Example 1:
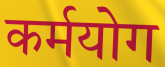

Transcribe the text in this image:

कर्मयोग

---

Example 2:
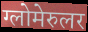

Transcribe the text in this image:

ग्लोमेरुलर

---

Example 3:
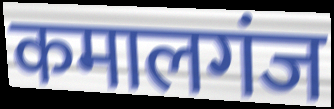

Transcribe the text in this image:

कमालगंज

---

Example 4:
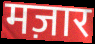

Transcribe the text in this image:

मज़ार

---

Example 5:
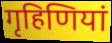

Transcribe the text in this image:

गृहिणियां